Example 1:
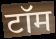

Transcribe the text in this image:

टॉम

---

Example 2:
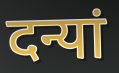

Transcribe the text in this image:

दन्यां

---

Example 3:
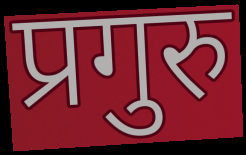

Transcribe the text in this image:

प्रगुरु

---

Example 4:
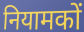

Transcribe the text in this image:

नियामकों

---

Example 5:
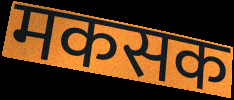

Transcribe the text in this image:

मकसक